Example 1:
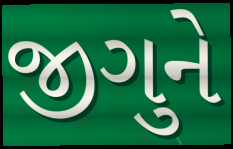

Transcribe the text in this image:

જીગુને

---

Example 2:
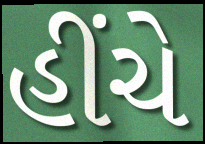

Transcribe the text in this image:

હીંચે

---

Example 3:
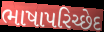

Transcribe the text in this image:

ભાષાપરિચ્છેદ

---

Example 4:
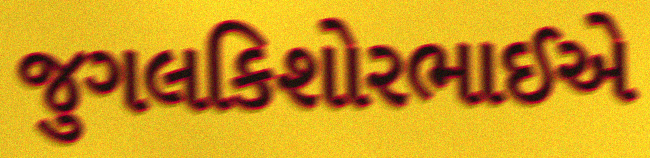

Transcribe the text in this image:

જુગલકિશોરભાઈએ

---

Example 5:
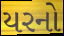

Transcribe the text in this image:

યરનો